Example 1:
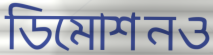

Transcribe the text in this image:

ডিমোশনও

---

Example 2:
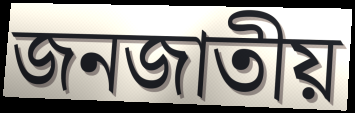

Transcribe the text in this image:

জনজাতীয়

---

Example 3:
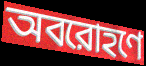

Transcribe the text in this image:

অবরোহণে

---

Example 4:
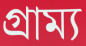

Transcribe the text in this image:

গ্রাম্য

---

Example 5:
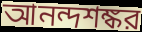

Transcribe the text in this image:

আনন্দশঙ্কর